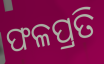
ଫଳପ୍ରତି